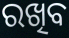
ରଖିବ